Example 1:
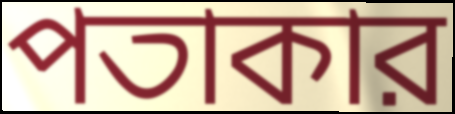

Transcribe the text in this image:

পতাকার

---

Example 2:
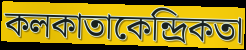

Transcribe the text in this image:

কলকাতাকেন্দ্রিকতা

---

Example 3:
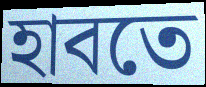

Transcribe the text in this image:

হাবতে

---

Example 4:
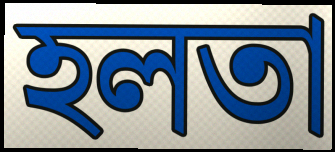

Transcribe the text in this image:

হলতা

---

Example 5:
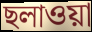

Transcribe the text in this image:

ছলাওয়া